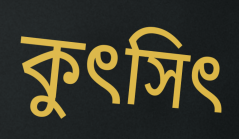
কুৎসিৎ